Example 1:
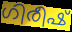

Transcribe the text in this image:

ഗിരീഷ്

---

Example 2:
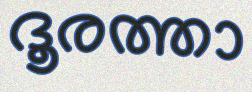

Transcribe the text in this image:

ദൂരത്താ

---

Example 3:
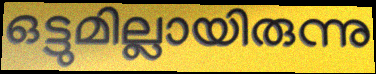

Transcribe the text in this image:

ഒട്ടുമില്ലായിരുന്നു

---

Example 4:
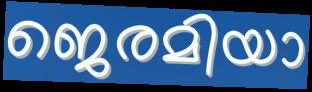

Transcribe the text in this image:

ജെരമിയാ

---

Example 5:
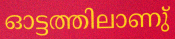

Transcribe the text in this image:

ഓട്ടത്തിലാണു്